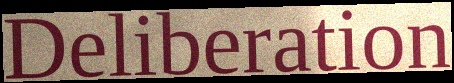
Deliberation